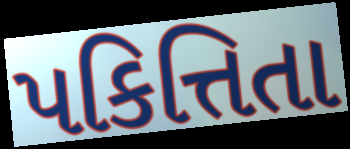
પકિત્તિતા